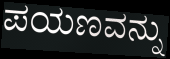
ಪಯಣವನ್ನು